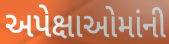
અપેક્ષાઓમાંની